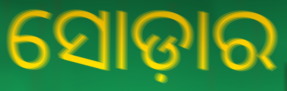
ସୋଡ଼ାର